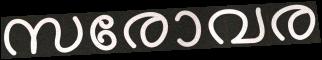
സരോവര